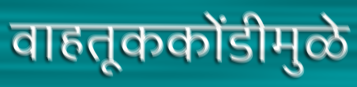
वाहतूककोंडीमुळे